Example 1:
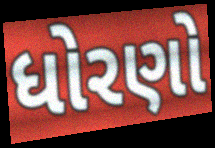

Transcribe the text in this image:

ધોરણો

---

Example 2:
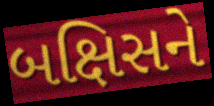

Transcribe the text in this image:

બક્ષિસને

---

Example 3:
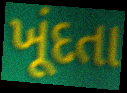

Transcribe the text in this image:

ખૂંદતા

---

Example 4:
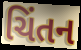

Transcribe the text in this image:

ચિંતન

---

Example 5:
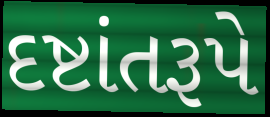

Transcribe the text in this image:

દષ્ટાંતરૂપે